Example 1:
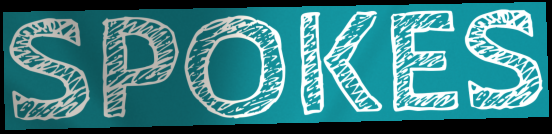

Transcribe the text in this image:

SPOKES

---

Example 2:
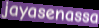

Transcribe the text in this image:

jayasenassa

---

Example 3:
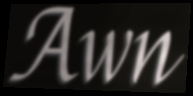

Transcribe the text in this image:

Awn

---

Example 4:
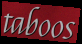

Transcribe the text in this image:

taboos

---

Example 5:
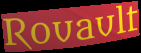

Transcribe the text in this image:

Rouault